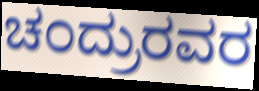
ಚಂದ್ರುರವರ